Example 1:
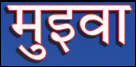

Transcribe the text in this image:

मुइवा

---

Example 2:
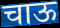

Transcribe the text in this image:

चाऊ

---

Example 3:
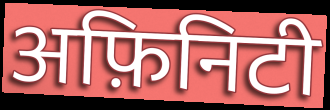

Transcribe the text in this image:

अफ़िनिटी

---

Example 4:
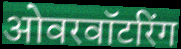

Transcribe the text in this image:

ओवरवॉटरिंग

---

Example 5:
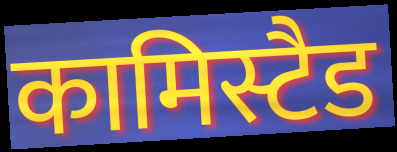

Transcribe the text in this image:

कामिस्टैड